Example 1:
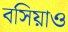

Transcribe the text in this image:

বসিয়াও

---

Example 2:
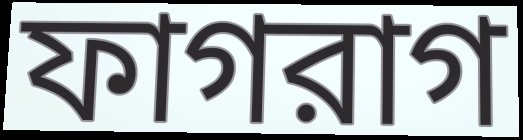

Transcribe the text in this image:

ফাগরাগ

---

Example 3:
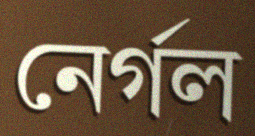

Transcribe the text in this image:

নের্গল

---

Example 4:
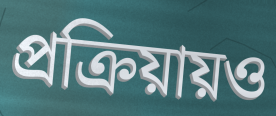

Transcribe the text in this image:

প্রক্রিয়ায়ও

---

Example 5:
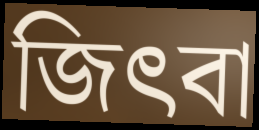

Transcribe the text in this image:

জিৎবা